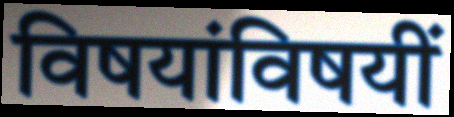
विषयांविषयीं